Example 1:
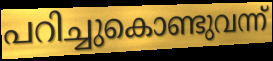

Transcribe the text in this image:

പറിച്ചുകൊണ്ടുവന്ന്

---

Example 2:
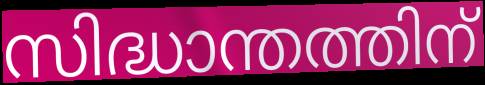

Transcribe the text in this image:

സിദ്ധാന്തത്തിന്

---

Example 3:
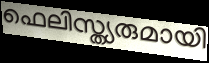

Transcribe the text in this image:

ഫെലിസ്ത്യരുമായി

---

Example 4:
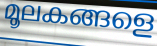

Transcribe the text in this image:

മൂലകങ്ങളെ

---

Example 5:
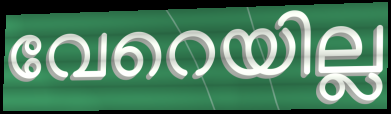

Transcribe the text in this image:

വേറെയില്ല